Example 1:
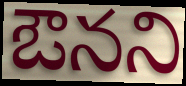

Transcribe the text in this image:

ఔనని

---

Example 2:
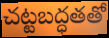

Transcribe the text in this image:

చట్టబద్ధతతో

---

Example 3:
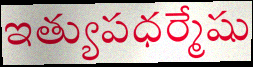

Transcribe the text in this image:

ఇత్యుపధర్మేషు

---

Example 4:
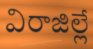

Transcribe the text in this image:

విరాజిల్లే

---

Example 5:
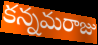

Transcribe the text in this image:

కన్నమరాజు